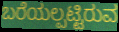
ಬರೆಯಲ್ಪಟ್ಟಿರುವ